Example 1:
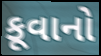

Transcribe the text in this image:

કૂવાનો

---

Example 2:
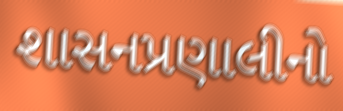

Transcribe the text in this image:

શાસનપ્રણાલીનો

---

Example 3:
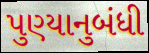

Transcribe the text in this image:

પુણ્યાનુબંધી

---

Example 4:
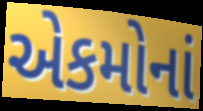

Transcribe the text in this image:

એકમોનાં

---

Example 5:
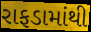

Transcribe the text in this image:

રાફડામાંથી